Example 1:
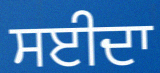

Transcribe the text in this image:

ਸਈਦਾ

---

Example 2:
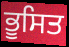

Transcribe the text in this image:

ਭੂਸਿਤ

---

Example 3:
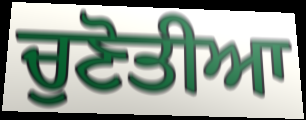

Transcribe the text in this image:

ਚੁਣੋਤੀਆ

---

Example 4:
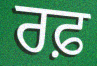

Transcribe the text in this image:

ਰਫ਼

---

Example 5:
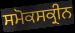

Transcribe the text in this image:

ਸਮੋਕਸਕ੍ਰੀਨ